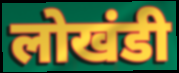
लोखंडी